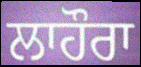
ਲਾਹੌਰਾ